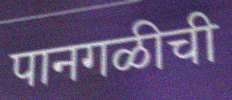
पानगळीची